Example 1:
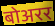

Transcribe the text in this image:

बोअरर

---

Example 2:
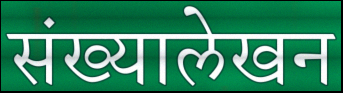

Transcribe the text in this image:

संख्यालेखन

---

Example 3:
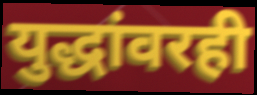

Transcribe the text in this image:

युद्धांवरही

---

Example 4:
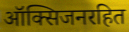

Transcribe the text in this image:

ऑक्सिजनरहित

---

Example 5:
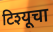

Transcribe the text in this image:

टिश्यूचा